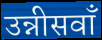
उन्नीसवाँ